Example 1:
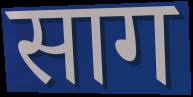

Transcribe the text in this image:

साग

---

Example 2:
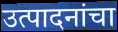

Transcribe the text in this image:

उत्पादनांचा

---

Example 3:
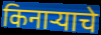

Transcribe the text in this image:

किनाऱ्याचे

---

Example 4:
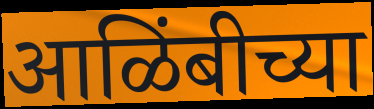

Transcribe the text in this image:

आळिंबीच्या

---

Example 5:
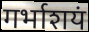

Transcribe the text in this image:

गर्भाशयं